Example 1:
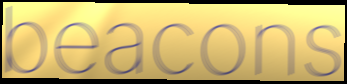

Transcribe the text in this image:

beacons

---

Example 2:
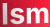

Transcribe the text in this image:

Ism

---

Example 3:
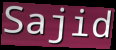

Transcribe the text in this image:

Sajid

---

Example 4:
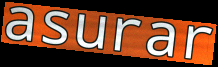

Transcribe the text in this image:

asurar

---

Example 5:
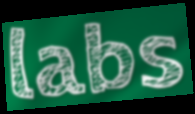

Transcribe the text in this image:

labs